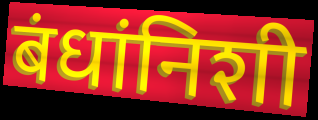
बंधांनिशी